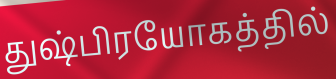
துஷ்பிரயோகத்தில்